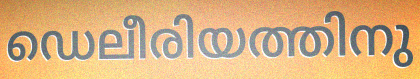
ഡെലീരിയത്തിനു